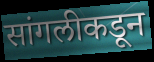
सांगलीकडून